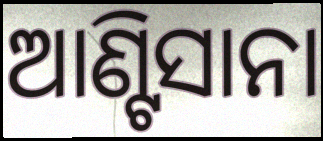
ଆଣ୍ଟିସାନା